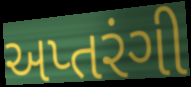
અપ્તરંગી